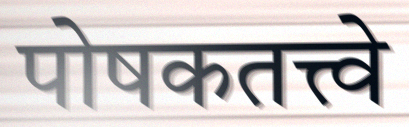
पोषकतत्त्वे